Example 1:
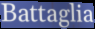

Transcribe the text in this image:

Battaglia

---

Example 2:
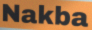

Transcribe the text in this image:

Nakba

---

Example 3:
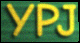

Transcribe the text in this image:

YPJ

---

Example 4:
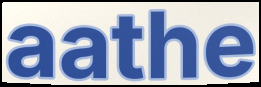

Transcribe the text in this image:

aathe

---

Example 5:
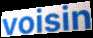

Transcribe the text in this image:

voisin